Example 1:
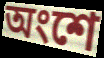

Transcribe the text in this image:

অংশে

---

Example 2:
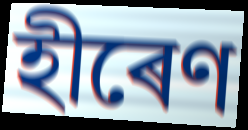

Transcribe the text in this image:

হীৰেণ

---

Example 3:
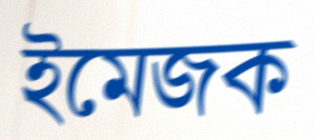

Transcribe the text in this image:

ইমেজক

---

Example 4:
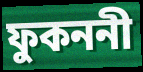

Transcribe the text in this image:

ফুকননী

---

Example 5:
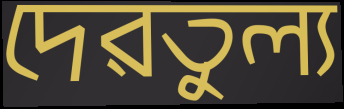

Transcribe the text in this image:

দেৱতুল্য